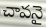
చావనై